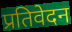
प्रतिवेदन